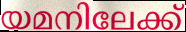
യമനിലേക്ക്